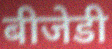
बीजेडी